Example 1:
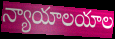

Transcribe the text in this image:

న్యాయాలయాల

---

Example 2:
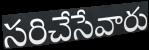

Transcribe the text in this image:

సరిచేసేవారు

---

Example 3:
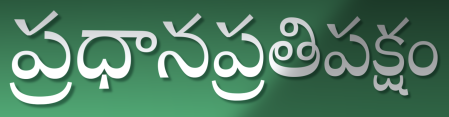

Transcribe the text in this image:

ప్రధానప్రతిపక్షం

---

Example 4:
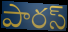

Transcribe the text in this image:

పారస్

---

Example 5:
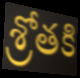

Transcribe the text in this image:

శ్రోతకి